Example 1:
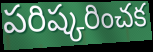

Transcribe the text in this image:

పరిష్కరించక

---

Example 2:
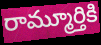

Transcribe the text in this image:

రామ్మూర్తికి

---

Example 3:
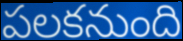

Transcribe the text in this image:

పలకనుంది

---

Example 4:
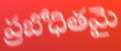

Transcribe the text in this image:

ప్రబోధితమై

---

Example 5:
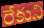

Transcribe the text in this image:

రేకుని